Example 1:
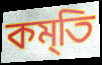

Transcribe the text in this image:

কম্‌তি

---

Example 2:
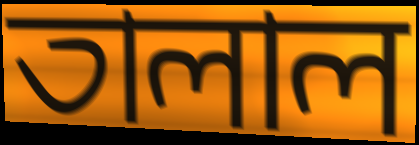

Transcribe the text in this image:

তালাল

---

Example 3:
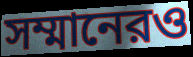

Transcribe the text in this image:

সম্মানেরও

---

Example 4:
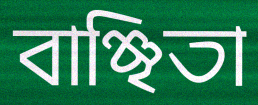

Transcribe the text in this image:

বাঞ্ছিতা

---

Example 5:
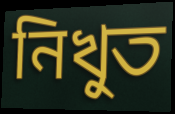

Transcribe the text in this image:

নিখুত